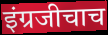
इंग्रजीचाच